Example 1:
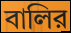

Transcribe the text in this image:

বালির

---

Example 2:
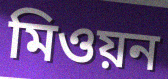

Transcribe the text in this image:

মিওয়ন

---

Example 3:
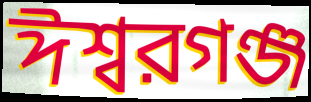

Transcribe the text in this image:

ঈশ্বরগঞ্জ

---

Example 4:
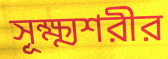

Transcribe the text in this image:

সূক্ষ্মশরীর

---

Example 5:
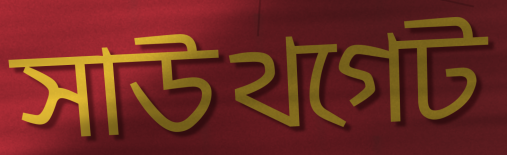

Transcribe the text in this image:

সাউথগেট